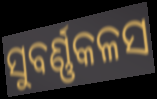
ସୁବର୍ଣ୍ଣକଳସ